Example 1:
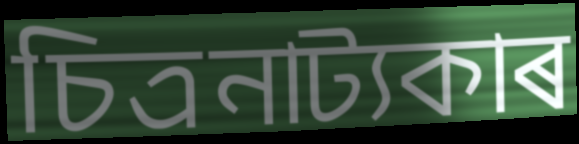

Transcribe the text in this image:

চিত্ৰনাট্যকাৰ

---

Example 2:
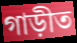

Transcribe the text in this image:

গাড়ীত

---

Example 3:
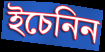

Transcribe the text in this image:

ইচেনিন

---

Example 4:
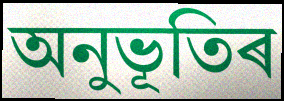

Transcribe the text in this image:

অনুভূতিৰ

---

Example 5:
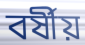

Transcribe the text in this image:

বৰ্ষীয়